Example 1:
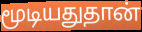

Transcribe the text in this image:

மூடியதுதான்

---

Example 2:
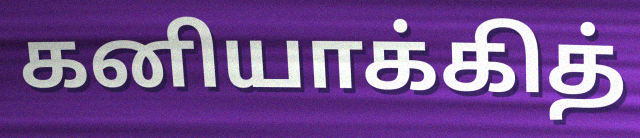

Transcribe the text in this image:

கனியாக்கித்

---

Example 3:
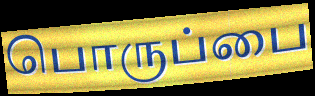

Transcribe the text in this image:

பொருப்பை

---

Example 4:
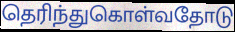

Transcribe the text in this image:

தெரிந்துகொள்வதோடு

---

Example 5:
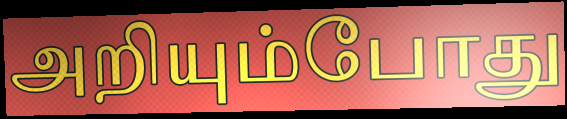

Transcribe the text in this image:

அறியும்போது